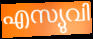
എസ്യുവി